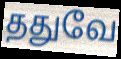
ததுவே